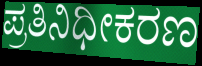
ಪ್ರತಿನಿಧೀಕರಣ